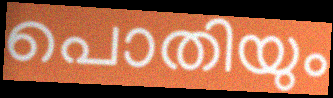
പൊതിയും